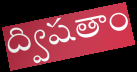
ద్విషతాం